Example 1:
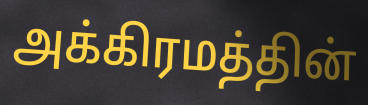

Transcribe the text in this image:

அக்கிரமத்தின்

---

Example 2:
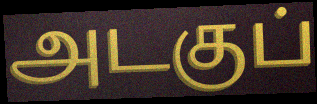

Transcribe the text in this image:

அடகுப்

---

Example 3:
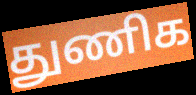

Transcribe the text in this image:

துணிக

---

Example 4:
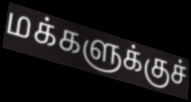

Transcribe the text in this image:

மக்களுக்குச்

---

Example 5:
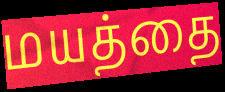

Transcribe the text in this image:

மயத்தை